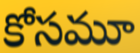
కోసమూ